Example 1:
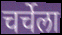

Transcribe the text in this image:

चर्चेला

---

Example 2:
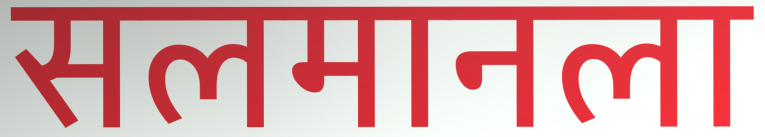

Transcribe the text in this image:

सलमानला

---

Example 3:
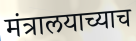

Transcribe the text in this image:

मंत्रालयाच्याच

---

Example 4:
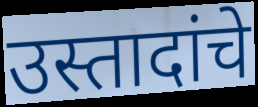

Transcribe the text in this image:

उस्तादांचे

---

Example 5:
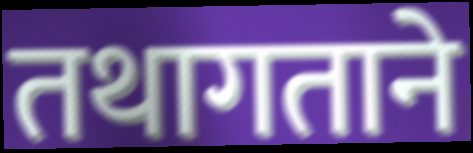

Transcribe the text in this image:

तथागताने